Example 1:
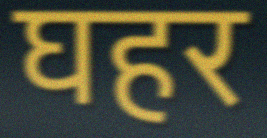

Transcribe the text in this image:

घहर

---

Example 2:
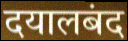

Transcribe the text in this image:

दयालबंद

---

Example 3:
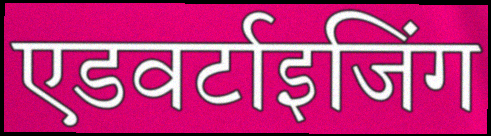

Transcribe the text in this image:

एडवर्टाइजिंग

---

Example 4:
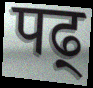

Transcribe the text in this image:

पढ्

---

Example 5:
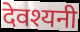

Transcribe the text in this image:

देवश्यनी